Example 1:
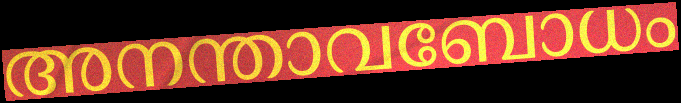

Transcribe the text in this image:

അനന്താവബോധം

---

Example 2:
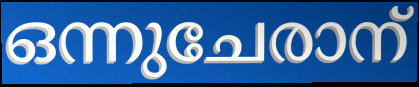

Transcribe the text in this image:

ഒന്നുചേരാന്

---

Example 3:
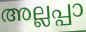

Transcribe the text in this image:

അല്ലപ്പാ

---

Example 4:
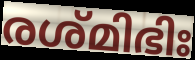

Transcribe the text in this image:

രശ്മിഭിഃ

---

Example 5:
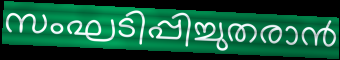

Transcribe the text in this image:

സംഘടിപ്പിച്ചുതരാൻ